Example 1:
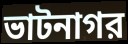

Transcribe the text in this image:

ভাটনাগর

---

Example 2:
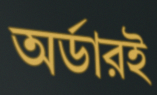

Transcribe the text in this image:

অর্ডারই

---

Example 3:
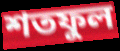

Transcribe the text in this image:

শতফুল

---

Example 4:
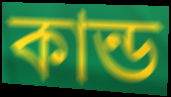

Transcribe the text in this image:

কান্ড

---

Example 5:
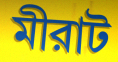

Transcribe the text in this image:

মীরাট